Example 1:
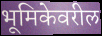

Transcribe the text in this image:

भूमिकेवरील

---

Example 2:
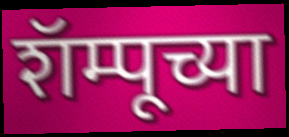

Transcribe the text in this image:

शॅम्पूच्या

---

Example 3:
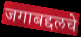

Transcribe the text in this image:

जगाबद्दलचे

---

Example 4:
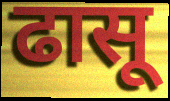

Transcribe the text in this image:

ढासू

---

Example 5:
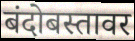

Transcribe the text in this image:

बंदोबस्तावर